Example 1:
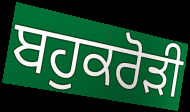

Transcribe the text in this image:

ਬਹੁਕਰੋੜੀ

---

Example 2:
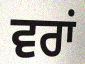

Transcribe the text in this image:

ਵਰਾਂ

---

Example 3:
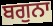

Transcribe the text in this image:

ਬਗੁਨਾ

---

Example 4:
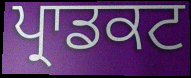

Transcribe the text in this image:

ਪ੍ਰਾਡਕਟ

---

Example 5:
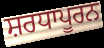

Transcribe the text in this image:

ਸ਼ਰਧਾਪੂਰਨ